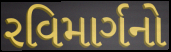
રવિમાર્ગનો